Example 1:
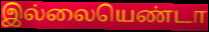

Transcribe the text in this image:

இல்லையெண்டா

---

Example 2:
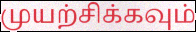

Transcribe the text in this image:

முயற்சிக்கவும்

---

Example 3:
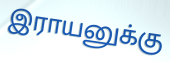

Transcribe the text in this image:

இராயனுக்கு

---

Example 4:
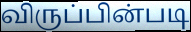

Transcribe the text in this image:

விருப்பின்படி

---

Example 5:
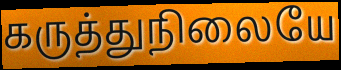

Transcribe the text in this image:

கருத்துநிலையே